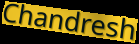
Chandresh